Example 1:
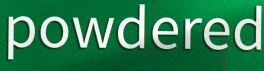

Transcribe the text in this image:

powdered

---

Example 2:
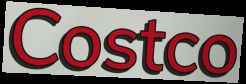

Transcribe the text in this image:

Costco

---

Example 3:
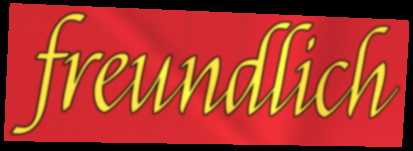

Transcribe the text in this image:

freundlich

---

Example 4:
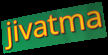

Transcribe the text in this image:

jivatma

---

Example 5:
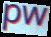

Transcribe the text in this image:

pw